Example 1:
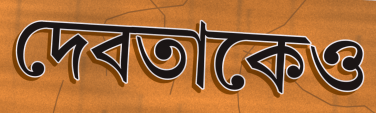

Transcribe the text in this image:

দেবতাকেও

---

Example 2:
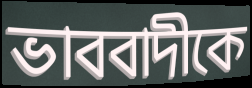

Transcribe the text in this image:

ভাববাদীকে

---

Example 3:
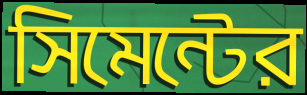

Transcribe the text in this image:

সিমেন্টের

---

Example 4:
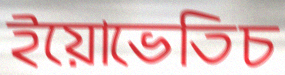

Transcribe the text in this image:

ইয়োভেতিচ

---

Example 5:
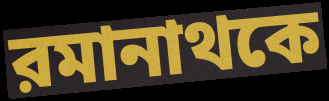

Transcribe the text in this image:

রমানাথকে